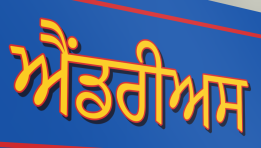
ਐਂਡਰੀਅਸ